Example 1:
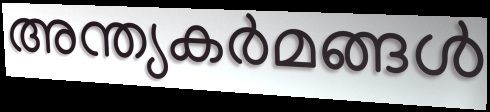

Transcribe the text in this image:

അന്ത്യകർമങ്ങൾ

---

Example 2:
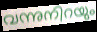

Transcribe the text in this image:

വന്നുനിറയും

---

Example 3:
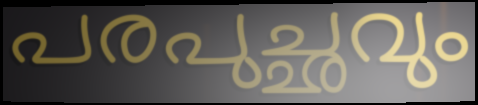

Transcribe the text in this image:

പരപുച്ഛവും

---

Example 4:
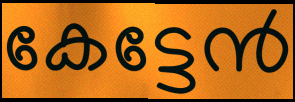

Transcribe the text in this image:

കേട്ടേൻ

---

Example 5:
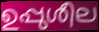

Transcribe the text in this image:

ഉപ്പുശീല